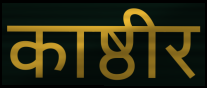
काष्ठीर